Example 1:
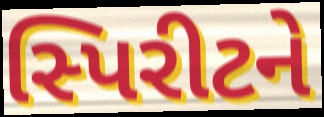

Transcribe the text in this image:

સ્પિરીટને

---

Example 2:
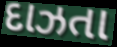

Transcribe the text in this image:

દાઝતા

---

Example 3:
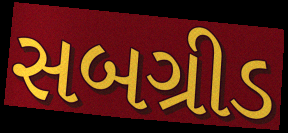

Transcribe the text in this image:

સબગ્રીડ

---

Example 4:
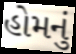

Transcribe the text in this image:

હોમનું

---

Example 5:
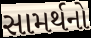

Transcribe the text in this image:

સામર્થનો